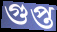
গুপ্ত